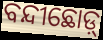
ବନ୍ଦୀଛୋଡ଼୍